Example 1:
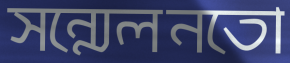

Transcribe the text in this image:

সন্মেলনতো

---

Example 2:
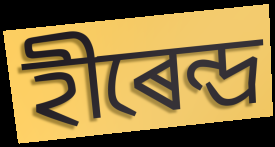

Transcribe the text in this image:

হীৰেন্দ্ৰ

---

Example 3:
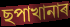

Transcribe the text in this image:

ছপাখানাৰ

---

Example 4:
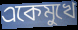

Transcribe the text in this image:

একেমুখে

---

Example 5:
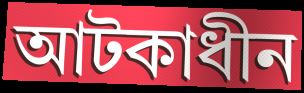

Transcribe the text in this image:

আটকাধীন